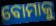
ବୋମାକୁ